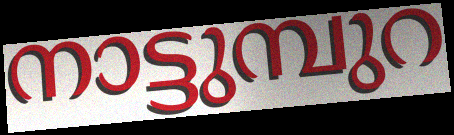
നാട്ടുമ്പുറ